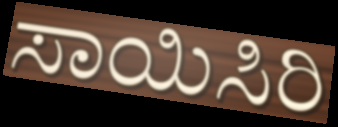
ಸಾಯಿಸಿರಿ